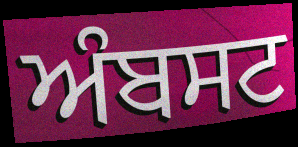
ਅੰਬਸਟ